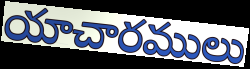
యాచారములు